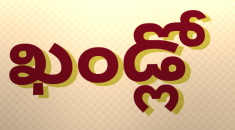
ఖండ్లో